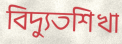
বিদ্যুতশিখা